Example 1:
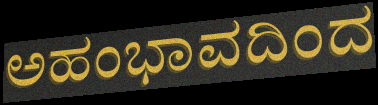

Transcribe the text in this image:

ಅಹಂಭಾವದಿಂದ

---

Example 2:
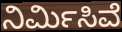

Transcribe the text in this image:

ನಿರ್ಮಿಸಿವೆ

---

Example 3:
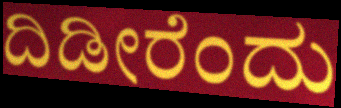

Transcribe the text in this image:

ದಿಡೀರೆಂದು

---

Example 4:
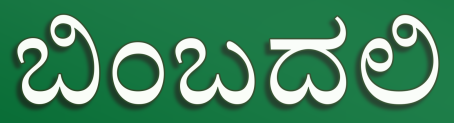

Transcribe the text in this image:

ಬಿಂಬದಲಿ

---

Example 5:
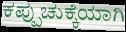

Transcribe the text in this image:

ಕಪ್ಪುಚುಕ್ಕೆಯಾಗಿ